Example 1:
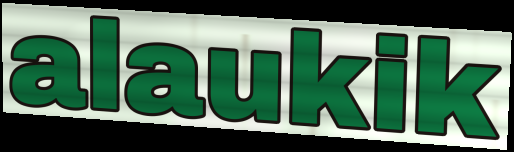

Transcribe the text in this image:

alaukik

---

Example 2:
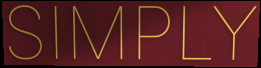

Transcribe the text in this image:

SIMPLY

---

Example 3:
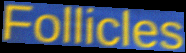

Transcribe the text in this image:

Follicles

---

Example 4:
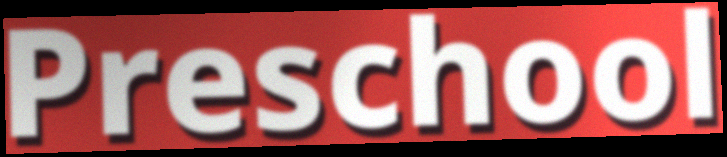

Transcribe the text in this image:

Preschool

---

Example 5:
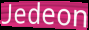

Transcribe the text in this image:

Jedeon